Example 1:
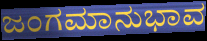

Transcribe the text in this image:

ಜಂಗಮಾನುಭಾವ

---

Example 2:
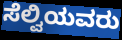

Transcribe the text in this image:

ಸೆಲ್ವಿಯವರು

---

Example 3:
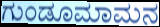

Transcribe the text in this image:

ಗುಂಡೂಮಾಮನ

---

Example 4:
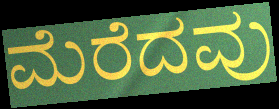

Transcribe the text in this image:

ಮೆರೆದವು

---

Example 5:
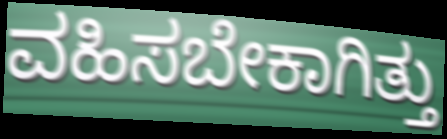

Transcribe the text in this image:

ವಹಿಸಬೇಕಾಗಿತ್ತು